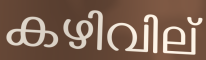
കഴിവില്